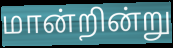
மான்றின்று